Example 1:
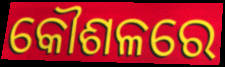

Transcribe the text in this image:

କୌଶଳରେ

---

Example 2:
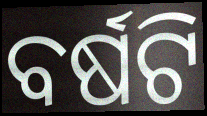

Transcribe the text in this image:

ବର୍ଷଟି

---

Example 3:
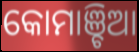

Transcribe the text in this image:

କୋମାଞ୍ଚିଆ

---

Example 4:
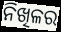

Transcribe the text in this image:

ନିଖିଳର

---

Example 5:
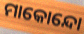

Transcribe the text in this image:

ମାକୋନ୍ଦୋ